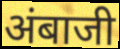
अंबाजी